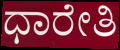
ಧಾರೇತಿ